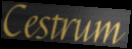
Cestrum